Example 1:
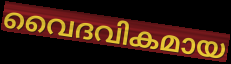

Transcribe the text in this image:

വൈദവികമായ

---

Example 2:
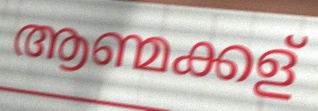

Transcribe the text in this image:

ആണ്മക്കള്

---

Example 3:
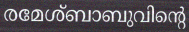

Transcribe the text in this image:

രമേശ്ബാബുവിന്റെ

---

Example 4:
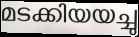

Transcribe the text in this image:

മടക്കിയയച്ചു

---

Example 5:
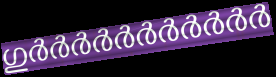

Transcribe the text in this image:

ഗുർർർർർർർർർർർ